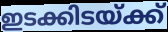
ഇടക്കിടയ്ക്ക്